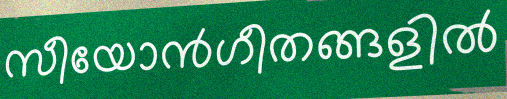
സീയോൻഗീതങ്ങളിൽ